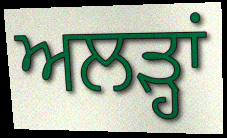
ਅਲੜ੍ਹਾਂ